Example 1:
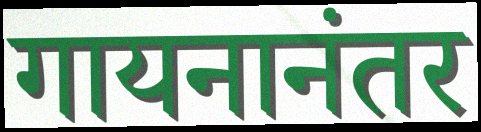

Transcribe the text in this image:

गायनानंतर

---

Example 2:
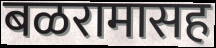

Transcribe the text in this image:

बळरामासह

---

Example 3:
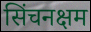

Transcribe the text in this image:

सिंचनक्षम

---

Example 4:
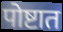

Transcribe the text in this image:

पोष्टात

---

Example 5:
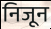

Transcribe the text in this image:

निजून